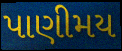
પાણીમય